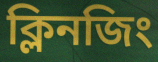
ক্লিনজিং